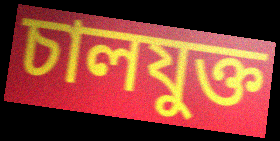
চালযুক্ত